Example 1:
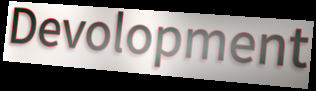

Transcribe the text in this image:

Devolopment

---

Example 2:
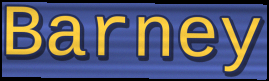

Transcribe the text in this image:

Barney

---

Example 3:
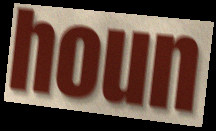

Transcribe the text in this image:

houn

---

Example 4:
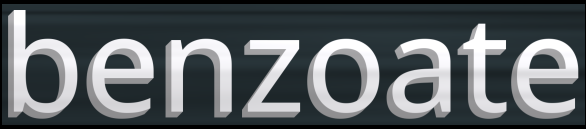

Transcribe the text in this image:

benzoate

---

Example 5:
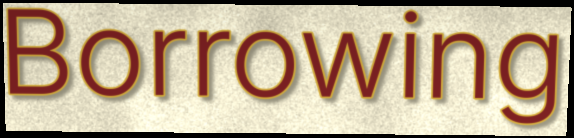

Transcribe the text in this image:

Borrowing